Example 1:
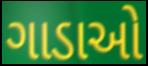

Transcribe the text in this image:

ગાડાઓ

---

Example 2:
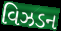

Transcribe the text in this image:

વિઝડન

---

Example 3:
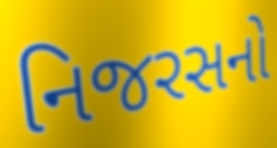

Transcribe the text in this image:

નિજરસનો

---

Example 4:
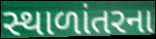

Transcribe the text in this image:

સ્થાળાંતરના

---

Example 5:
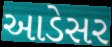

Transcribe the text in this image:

આડેસર